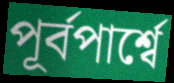
পূর্বপার্শ্বে